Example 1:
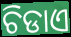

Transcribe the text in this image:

ଚିଡାଏ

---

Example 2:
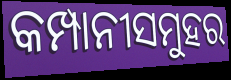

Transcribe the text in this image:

କମ୍ପାନୀସମୁହର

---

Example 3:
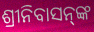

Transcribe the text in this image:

ଶ୍ରୀନିବାସନ୍‌ଙ୍କ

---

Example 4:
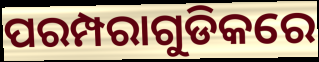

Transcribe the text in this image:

ପରମ୍ପରାଗୁଡିକରେ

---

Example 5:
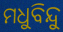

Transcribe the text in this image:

ମଧୁବିନ୍ଦୁ